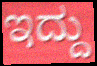
ಇದ್ದು